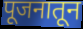
पूजनातून